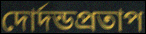
দোর্দন্ডপ্রতাপ